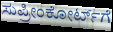
ಸುಪ್ರೀಂಕೋರ್ಟ್‌ಗೆ